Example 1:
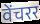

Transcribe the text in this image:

वेंचरर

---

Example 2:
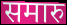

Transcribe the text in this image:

समारु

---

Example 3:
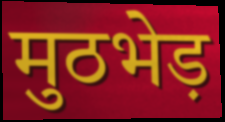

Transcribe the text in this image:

मुठभेड़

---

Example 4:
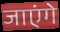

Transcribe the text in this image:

जाएंगे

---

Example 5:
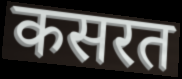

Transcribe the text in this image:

कसरत